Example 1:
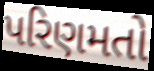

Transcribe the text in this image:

પરિણમતો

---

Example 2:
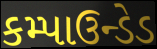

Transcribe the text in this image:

કમ્પાઉન્ડેડ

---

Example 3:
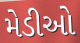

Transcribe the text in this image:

મેડીઓ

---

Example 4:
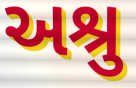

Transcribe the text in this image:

અશ્રુ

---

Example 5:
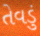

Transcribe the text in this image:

તેવડું